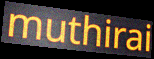
muthirai